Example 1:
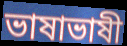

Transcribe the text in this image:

ভাষাভাষী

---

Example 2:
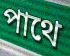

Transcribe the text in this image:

পাথে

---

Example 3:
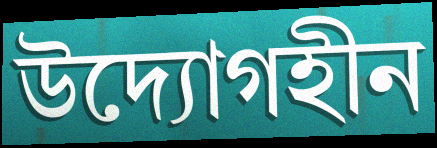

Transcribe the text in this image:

উদ্যোগহীন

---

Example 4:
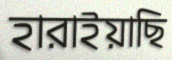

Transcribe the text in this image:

হারাইয়াছি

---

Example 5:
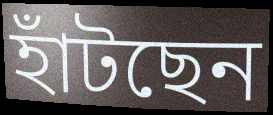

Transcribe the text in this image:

হাঁটছেন